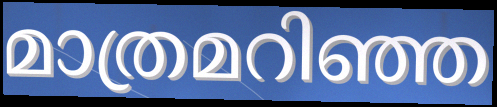
മാത്രമറിഞ്ഞ